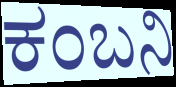
ಕಂಬನಿ